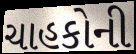
ચાહકોની